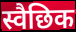
स्वैछिक